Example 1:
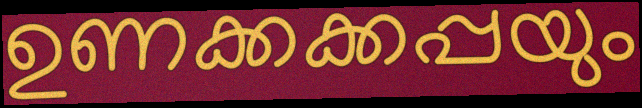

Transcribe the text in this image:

ഉണക്കക്കപ്പയും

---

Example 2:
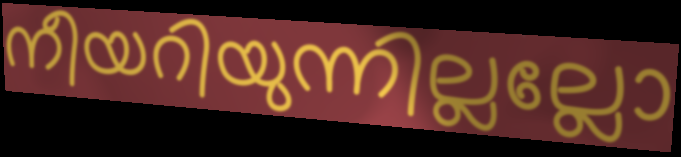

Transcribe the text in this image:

നീയറിയുന്നില്ലല്ലോ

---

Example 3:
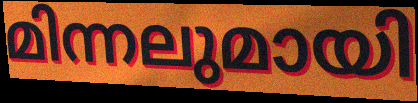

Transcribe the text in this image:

മിന്നലുമായി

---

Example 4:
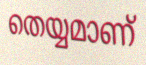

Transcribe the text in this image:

തെയ്യമാണ്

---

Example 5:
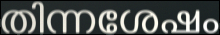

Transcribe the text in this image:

തിന്നശേഷം